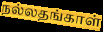
நல்லதங்காள்